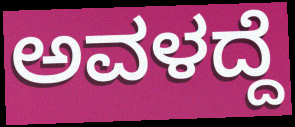
ಅವಳದ್ದೆ